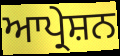
ਆਪ੍ਰੇਸ਼ਨ